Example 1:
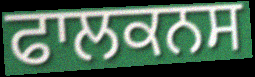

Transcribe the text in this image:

ਫਾਲਕਨਸ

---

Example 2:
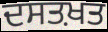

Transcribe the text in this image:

ਦਸਤ਼ਖਤ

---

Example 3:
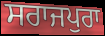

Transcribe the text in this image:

ਸਰਾਜਪੁਰਾ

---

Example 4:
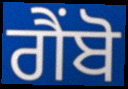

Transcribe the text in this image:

ਗੈਂਬੋ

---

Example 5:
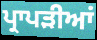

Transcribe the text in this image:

ਪ੍ਰਾਪੜੀਆਂ